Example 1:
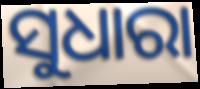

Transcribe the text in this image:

ସୁଧାରା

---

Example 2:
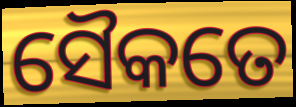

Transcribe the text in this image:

ସୈକତେ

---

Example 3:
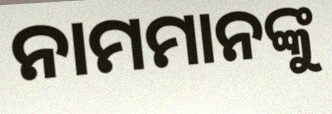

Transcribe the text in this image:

ନାମମାନଙ୍କୁ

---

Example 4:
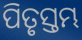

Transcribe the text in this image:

ପିତୃସ୍ତମ୍ଭ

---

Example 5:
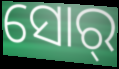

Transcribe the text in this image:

ସୋର୍